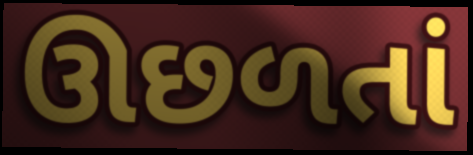
ઊછળતાં